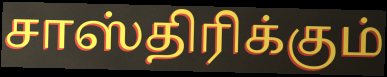
சாஸ்திரிக்கும்